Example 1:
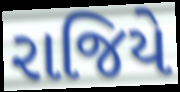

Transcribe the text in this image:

રાજિયે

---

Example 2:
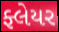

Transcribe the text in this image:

ફ્લેયર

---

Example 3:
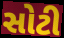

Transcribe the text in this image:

સોટી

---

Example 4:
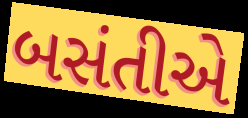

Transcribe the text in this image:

બસંતીએ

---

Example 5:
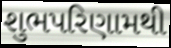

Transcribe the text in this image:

શુભપરિણામથી